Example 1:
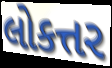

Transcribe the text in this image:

લોકત્તર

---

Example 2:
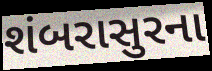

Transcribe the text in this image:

શંબરાસુરના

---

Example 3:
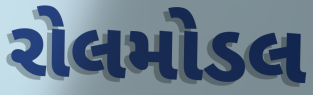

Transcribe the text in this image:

રોલમોડલ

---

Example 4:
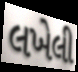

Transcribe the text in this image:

લખેલી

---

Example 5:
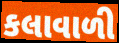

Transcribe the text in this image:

કલાવાળી